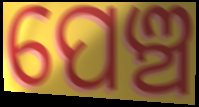
ପେଞ୍ଚ